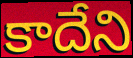
కాదేని